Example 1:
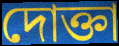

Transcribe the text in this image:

দোক্তা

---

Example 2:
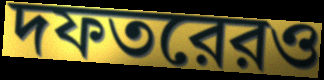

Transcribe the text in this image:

দফতরেরও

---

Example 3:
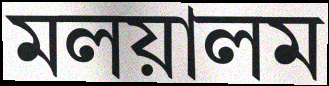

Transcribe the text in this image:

মলয়ালম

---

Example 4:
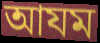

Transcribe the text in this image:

আযম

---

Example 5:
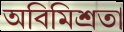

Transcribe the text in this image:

অবিমিশ্রতা